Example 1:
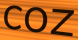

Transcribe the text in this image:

coz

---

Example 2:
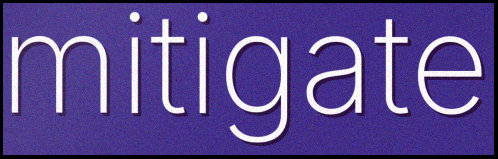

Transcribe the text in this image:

mitigate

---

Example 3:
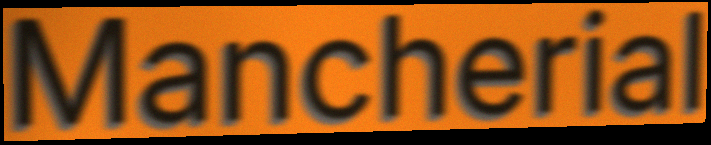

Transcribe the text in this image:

Mancherial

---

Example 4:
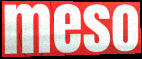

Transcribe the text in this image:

meso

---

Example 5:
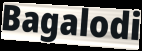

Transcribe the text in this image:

Bagalodi